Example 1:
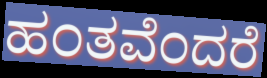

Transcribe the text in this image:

ಹಂತವೆಂದರೆ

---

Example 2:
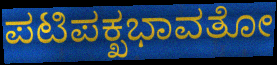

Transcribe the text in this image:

ಪಟಿಪಕ್ಖಭಾವತೋ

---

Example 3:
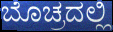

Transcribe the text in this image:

ಬೊಚ್ರದಲ್ಲಿ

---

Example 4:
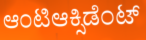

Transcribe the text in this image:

ಆಂಟಿಆಕ್ಸಿಡೆಂಟ್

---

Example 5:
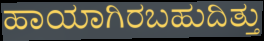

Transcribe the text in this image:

ಹಾಯಾಗಿರಬಹುದಿತ್ತು